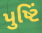
પુષ્ટિં